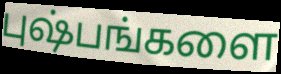
புஷ்பங்களை